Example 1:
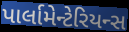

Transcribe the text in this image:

પાર્લામેન્ટેરિયન્સ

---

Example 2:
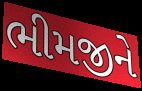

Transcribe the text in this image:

ભીમજીને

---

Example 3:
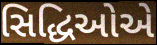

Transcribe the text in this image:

સિદ્ધિઓએ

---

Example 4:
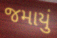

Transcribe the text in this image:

જમાયું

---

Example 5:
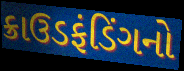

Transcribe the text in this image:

ક્રાઉડફંડિંગનો